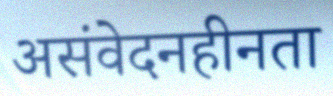
असंवेदनहीनता